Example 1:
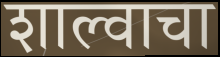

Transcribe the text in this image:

शाल्वाचा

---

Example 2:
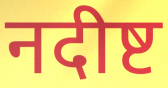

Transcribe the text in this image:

नदीष्ट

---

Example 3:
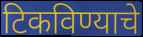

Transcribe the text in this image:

टिकविण्याचे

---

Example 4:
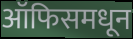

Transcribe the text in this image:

ऑफिसमधून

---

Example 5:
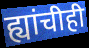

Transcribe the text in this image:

ह्यांचीही